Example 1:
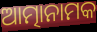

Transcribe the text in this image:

ଆତ୍ମାନାମକ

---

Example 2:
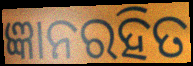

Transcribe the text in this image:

ଜ୍ଞାନରହିତ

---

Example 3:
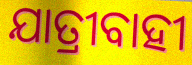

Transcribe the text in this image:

ଯାତ୍ରୀବାହୀ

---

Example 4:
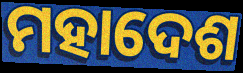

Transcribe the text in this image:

ମହାଦେଶ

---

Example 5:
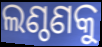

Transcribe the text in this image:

ଲଣ୍ଠଣକୁ